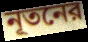
নূতনের